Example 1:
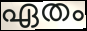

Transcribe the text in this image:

ഏതം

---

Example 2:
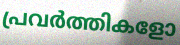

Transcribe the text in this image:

പ്രവർത്തികളോ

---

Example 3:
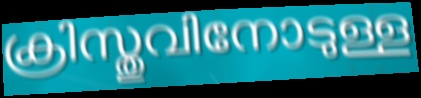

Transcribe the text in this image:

ക്രിസ്തുവിനോടുള്ള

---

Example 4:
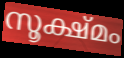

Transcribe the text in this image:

സൂക്ഷ്‌മം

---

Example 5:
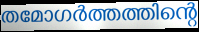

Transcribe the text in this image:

തമോഗർത്തത്തിന്റെ